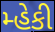
મ્હેકી